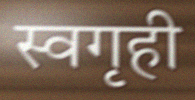
स्वगृही